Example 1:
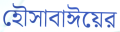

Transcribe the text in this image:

হৌসাবাঈয়ের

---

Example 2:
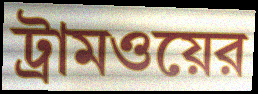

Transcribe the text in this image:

ট্রামওয়ের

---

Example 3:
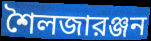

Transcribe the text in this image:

শৈলজারঞ্জন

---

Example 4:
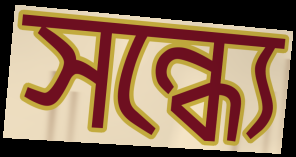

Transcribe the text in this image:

সন্ধ্যে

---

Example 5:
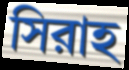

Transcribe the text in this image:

সিরাহ